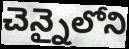
చెన్నైలోని